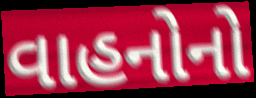
વાહનોનો